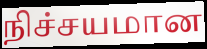
நிச்சயமான